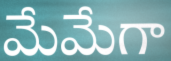
మేమేగా